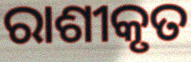
ରାଶୀକୃତ